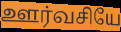
ஊர்வசியே